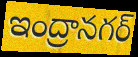
ఇంద్రానగర్